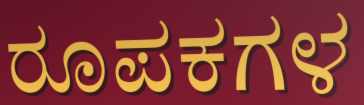
ರೂಪಕಗಳ